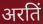
अरतिं